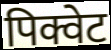
पिक्वेट